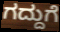
ಗದ್ದುಗೆ